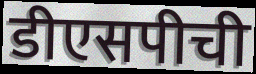
डीएसपीची